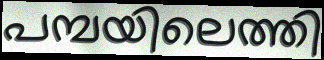
പമ്പയിലെത്തി